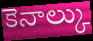
కెనాల్కు